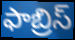
ఫాబ్రిస్